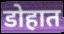
डोहात